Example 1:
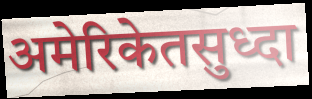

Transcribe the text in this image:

अमेरिकेतसुध्दा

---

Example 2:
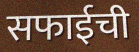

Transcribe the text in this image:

सफाईची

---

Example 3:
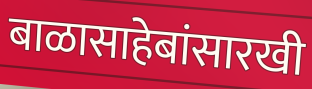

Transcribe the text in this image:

बाळासाहेबांसारखी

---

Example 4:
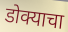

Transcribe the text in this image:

डोक्याचा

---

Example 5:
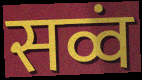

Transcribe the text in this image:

सव्वं